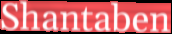
Shantaben